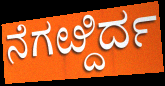
ನೆಗೞ್ದಿರ್ದ